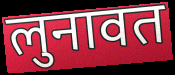
लुनावत